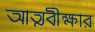
আত্মবীক্ষার